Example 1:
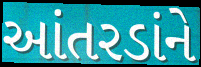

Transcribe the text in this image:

આંતરડાંને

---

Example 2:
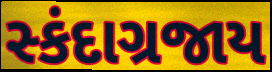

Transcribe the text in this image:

સ્કંદાગ્રજાય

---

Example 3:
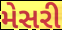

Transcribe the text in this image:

મેસરી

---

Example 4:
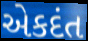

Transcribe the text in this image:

એકદંત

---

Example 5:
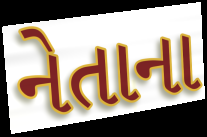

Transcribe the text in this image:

નેતાના